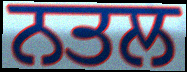
ਨਤਲ